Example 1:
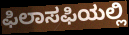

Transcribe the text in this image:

ಫಿಲಾಸಫಿಯಲ್ಲಿ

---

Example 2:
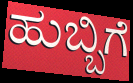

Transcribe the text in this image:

ಹುಬ್ಬಿಗೆ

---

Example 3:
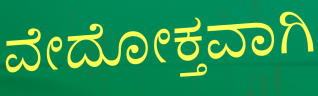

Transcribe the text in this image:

ವೇದೋಕ್ತವಾಗಿ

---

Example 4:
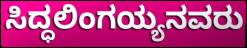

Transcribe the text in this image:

ಸಿದ್ಧಲಿಂಗಯ್ಯನವರು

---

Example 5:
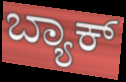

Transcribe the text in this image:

ಬ್ಯಾಕ್